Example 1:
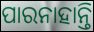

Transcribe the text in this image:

ପାରନାହାନ୍ତି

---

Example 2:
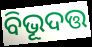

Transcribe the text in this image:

ବିଭୂଦତ୍ତ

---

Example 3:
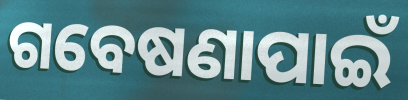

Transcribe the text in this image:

ଗବେଷଣାପାଇଁ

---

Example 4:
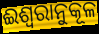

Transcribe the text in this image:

ଈଶ୍ଵରାନୁକୂଳ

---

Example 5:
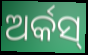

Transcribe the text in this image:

ଅର୍କସ୍